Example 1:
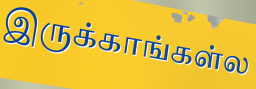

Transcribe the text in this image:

இருக்காங்கள்ல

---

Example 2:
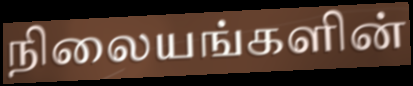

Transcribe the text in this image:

நிலையங்களின்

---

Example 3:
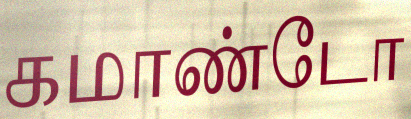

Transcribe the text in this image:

கமாண்டோ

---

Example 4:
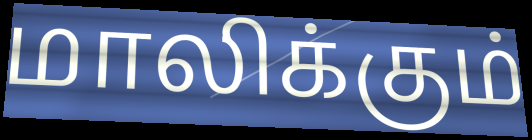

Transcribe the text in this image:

மாலிக்கும்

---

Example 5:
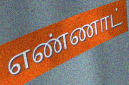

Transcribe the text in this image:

எண்ணாட்